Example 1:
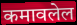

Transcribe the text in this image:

कमावलेल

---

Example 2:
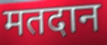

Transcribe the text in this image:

मतदान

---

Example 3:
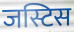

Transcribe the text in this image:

जस्टिस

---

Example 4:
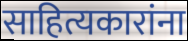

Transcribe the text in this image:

साहित्यकारांना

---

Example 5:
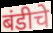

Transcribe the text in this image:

बंडीचे